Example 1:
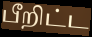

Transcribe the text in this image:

பீறிட்ட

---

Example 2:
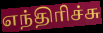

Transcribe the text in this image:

எந்திரிச்சு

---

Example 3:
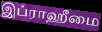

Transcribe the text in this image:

இப்ராஹீமை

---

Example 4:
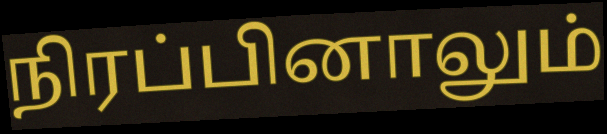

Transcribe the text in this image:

நிரப்பினாலும்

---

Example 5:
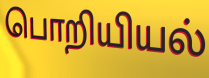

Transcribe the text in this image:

பொறியியல்